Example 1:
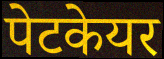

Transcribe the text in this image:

पेटकेयर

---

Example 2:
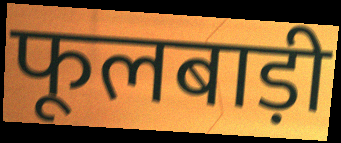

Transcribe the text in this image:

फूलबाड़ी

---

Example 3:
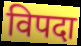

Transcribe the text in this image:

विपदा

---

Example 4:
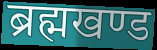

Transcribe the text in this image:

ब्रह्मखण्ड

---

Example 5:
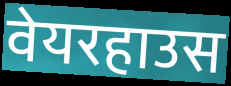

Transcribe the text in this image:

वेयरहाउस